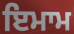
ਇਮਾਮ